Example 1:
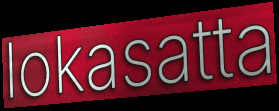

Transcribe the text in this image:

lokasatta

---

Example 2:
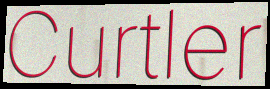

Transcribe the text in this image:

Curtler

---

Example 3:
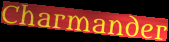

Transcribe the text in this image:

Charmander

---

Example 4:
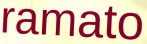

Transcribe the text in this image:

ramato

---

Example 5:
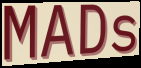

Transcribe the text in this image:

MADs